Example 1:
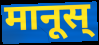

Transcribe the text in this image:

मानूस्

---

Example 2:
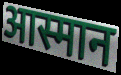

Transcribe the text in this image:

आस्मान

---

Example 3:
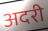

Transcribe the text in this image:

अदरी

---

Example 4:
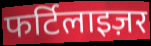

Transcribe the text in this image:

फर्टिलाइज़र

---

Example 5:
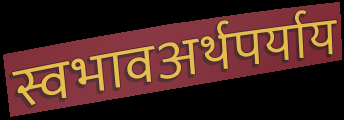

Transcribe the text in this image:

स्वभावअर्थपर्याय